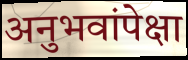
अनुभवांपेक्षा